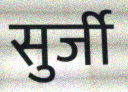
सुर्जी